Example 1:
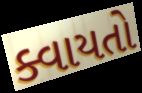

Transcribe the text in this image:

ક્વાયતો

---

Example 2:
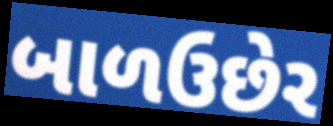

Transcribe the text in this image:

બાળઉછેર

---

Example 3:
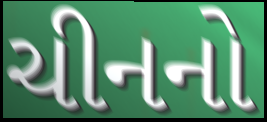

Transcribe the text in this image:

ચીનનો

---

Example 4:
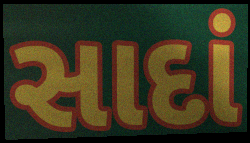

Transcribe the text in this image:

સાદાં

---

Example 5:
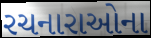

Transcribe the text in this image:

રચનારાઓના